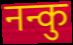
नन्कु